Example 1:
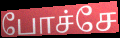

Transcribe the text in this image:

போச்சே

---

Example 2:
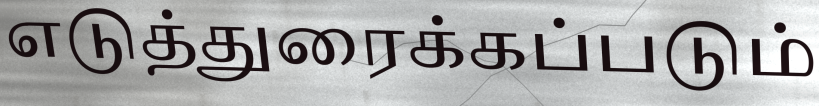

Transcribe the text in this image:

எடுத்துரைக்கப்படும்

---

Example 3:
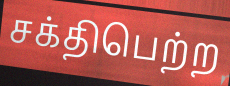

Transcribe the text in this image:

சக்திபெற்ற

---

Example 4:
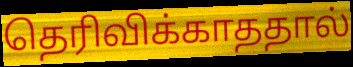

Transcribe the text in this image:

தெரிவிக்காததால்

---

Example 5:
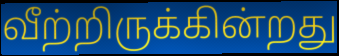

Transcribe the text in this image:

வீற்றிருக்கின்றது